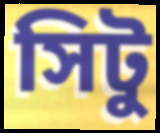
সিটু